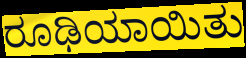
ರೂಢಿಯಾಯಿತು